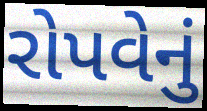
રોપવેનું